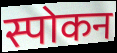
स्पोकन